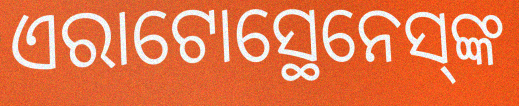
ଏରାଟୋସ୍ଥେନେସ୍‌ଙ୍କ